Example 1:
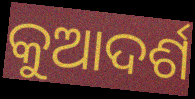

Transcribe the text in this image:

କୁଆଦର୍ଶ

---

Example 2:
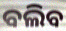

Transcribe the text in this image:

ବଲିବ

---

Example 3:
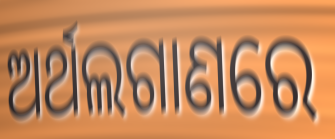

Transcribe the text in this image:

ଅର୍ଥଲଗାଣରେ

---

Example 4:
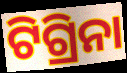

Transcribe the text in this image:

ଟିଗ୍ରିନା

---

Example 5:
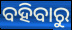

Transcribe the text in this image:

ବହିବାରୁ